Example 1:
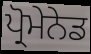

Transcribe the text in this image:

ਪ੍ਰੋਮੇਨੇਡ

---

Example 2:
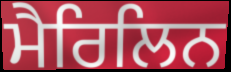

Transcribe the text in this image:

ਮੈਰਿਲਿਨ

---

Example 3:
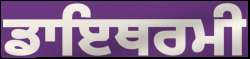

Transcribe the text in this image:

ਡਾਇਥਰਮੀ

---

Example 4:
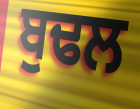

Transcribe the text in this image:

ਬੁਢਲ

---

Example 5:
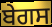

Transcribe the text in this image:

ਬੇਗਸ